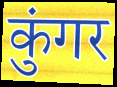
कुंगर